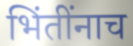
भिंतींनाच